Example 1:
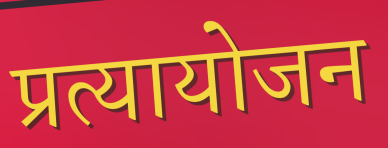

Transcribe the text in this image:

प्रत्यायोजन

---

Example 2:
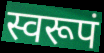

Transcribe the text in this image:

स्वरूपं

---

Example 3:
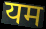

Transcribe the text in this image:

यम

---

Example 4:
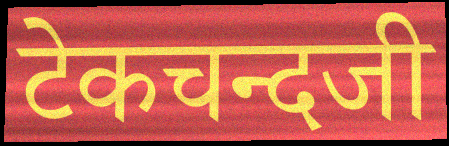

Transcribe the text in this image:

टेकचन्दजी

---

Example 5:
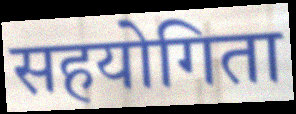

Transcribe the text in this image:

सहयोगिता